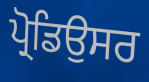
ਪ੍ਰੋਡਿਉਸਰ